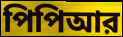
পিপিআর